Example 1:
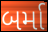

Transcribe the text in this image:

બર્મા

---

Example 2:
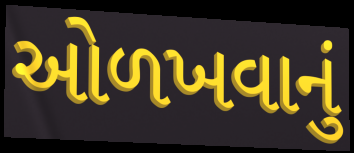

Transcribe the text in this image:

ઓળખવાનું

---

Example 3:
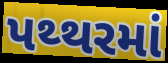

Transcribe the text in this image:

પથ્થરમાં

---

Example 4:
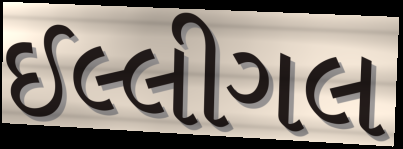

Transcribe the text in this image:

ઈલ્લીગલ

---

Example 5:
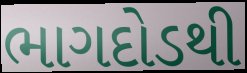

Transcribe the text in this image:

ભાગદોડથી